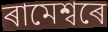
ৰামেশ্বৰে